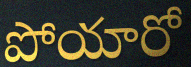
పోయారో